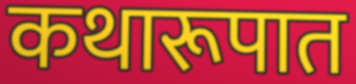
कथारूपात